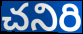
చనిరి